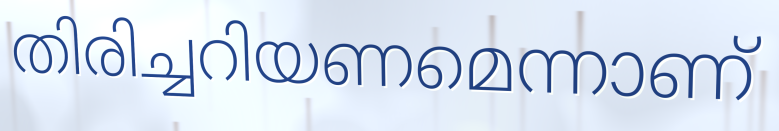
തിരിച്ചറിയണമെന്നാണ്